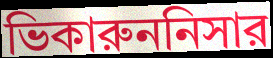
ভিকারুননিসার